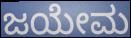
ಜಯೇಮ